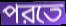
পরতে